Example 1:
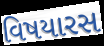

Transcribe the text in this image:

વિષયારસ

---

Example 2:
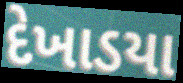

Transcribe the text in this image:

દેખાડયા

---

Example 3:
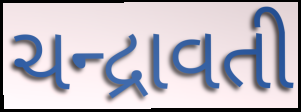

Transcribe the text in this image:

ચન્દ્રાવતી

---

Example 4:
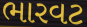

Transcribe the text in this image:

ભારવટ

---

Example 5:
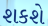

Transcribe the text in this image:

શકશે